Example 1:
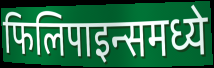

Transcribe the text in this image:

फिलिपाइन्समध्ये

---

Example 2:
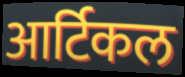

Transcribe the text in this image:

आर्टिकल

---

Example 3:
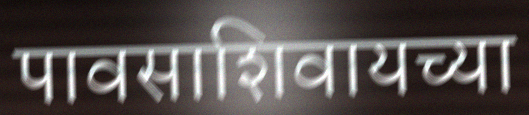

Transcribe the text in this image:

पावसाशिवायच्या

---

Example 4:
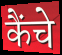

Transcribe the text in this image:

कैंचे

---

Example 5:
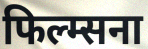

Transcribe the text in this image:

फिल्म्सना